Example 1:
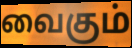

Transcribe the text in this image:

வைகும்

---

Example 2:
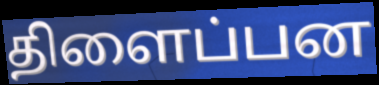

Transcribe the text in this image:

திளைப்பன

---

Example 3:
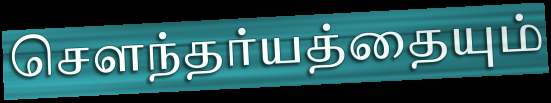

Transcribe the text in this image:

சௌந்தர்யத்தையும்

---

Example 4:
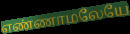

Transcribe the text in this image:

எண்ணாமலேயே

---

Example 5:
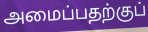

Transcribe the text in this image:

அமைப்பதற்குப்